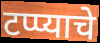
टप्प्याचे